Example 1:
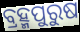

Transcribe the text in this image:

ବ୍ରହ୍ମପୁରୁଷ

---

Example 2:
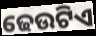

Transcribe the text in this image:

ଢେଉଟିଏ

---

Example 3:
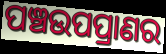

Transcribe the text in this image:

ପଞ୍ଚଉପପ୍ରାଣର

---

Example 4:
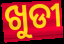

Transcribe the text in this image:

ଖୁଡୀ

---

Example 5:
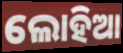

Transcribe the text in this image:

ଲୋହିଆ